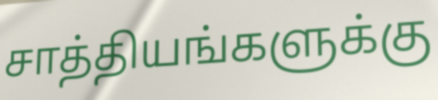
சாத்தியங்களுக்கு